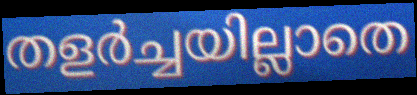
തളർച്ചയില്ലാതെ